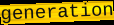
generation